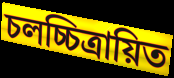
চলচ্চিত্রায়িত